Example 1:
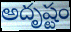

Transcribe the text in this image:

అదృష్టం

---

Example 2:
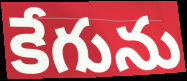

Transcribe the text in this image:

కేగును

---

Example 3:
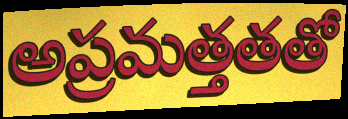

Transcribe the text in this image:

అప్రమత్తతతో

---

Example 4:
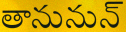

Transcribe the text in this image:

తానునున్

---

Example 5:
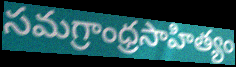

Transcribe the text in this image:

సమగ్రాంధ్రసాహిత్యం